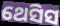
ଥେସିସ